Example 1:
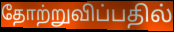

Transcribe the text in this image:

தோற்றுவிப்பதில்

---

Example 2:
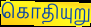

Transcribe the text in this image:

கொதியுறு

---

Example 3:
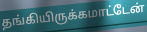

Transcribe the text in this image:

தங்கியிருக்கமாட்டேன்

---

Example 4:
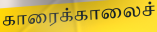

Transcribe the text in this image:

காரைக்காலைச்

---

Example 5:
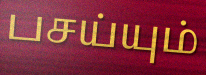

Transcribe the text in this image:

பசய்யும்